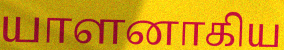
யாளனாகிய